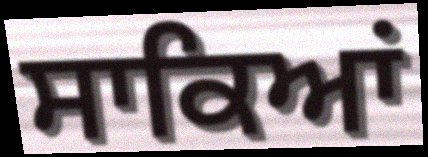
ਸਾਕਿਆਂ